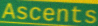
Ascents